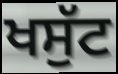
ਖਸੁੱਟ